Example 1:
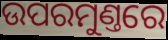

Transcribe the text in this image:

ଉପରମୁଣ୍ତରେ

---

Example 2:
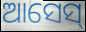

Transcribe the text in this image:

ଆସେସ୍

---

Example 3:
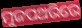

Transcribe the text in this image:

ମୁଜପଥରିରେ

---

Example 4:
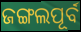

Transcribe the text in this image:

ଜଙ୍ଗଲପୂର୍ବ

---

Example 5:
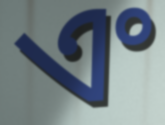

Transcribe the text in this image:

ଏଂ